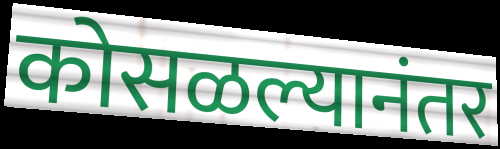
कोसळल्यानंतर